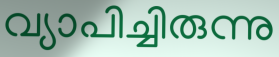
വ്യാപിച്ചിരുന്നു